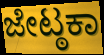
ಜೇಟ್ಠಕಾ